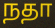
நதா